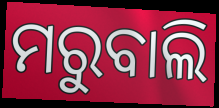
ମରୁବାଲି